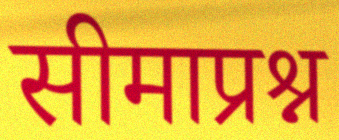
सीमाप्रश्न